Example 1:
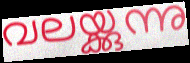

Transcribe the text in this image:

വലയ്ക്കുന്നു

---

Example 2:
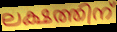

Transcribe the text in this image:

ലക്ഷത്തിന്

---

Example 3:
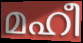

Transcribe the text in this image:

മഹീ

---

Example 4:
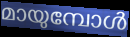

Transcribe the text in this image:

മായുമ്പോൾ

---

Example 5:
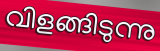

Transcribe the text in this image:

വിളങ്ങിടുന്നു